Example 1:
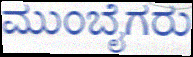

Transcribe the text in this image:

ಮುಂಬೈಗರು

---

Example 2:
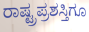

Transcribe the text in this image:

ರಾಷ್ಟ್ರಪ್ರಶಸ್ತಿಗೂ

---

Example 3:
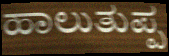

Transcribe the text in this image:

ಹಾಲುತುಪ್ಪ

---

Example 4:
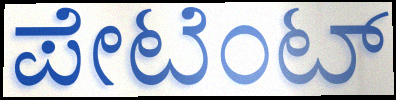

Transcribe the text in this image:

ಪೇಟೆಂಟ್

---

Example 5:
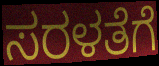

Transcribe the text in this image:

ಸರಳತೆಗೆ